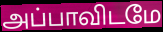
அப்பாவிடமே